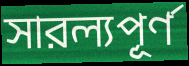
সারল্যপূর্ণ